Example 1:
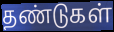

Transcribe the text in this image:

தண்டுகள்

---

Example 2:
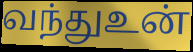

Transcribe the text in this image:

வந்துஉன்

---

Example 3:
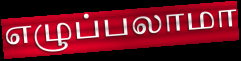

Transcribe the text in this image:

எழுப்பலாமா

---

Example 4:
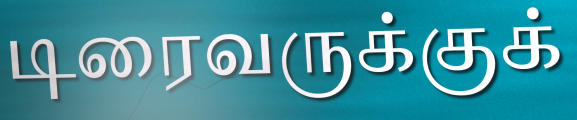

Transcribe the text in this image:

டிரைவருக்குக்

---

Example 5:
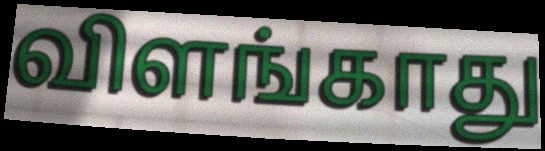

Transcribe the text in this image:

விளங்காது